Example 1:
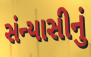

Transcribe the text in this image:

સંન્યાસીનું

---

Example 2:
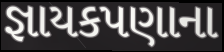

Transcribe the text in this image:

જ્ઞાયકપણાના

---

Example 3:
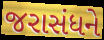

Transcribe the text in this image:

જરાસંધને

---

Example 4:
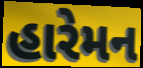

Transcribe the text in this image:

હારેમન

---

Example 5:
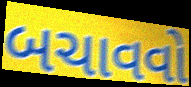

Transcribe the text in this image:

બચાવવો